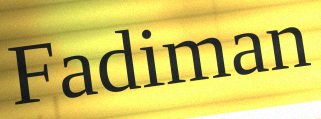
Fadiman